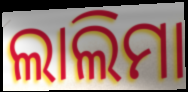
ଲାଲିମା